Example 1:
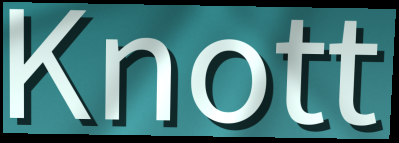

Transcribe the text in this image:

Knott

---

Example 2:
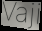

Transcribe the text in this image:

Vaji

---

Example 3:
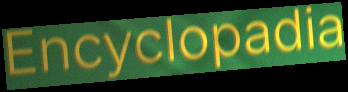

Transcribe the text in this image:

Encyclopadia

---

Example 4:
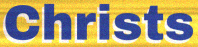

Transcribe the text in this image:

Christs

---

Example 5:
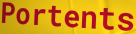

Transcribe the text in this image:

Portents